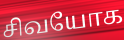
சிவயோக